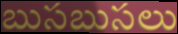
బుసబుసలు